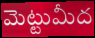
మెట్టుమీద